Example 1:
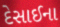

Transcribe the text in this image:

દેસાઈના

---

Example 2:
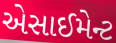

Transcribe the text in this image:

એસાઈમેન્ટ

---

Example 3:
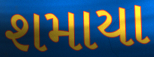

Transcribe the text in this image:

શમાયા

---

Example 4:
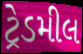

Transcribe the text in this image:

ટ્રેડમીલ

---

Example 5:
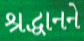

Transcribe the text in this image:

શ્રદ્ધાનને